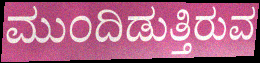
ಮುಂದಿಡುತ್ತಿರುವ